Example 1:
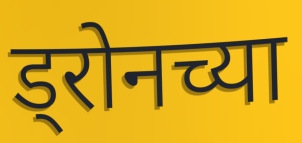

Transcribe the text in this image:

ड्रोनच्या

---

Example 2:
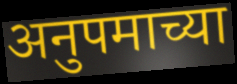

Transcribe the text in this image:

अनुपमाच्या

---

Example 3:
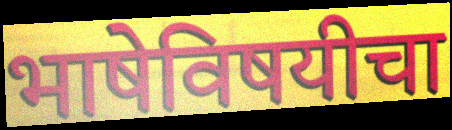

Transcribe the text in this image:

भाषेविषयीचा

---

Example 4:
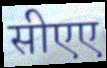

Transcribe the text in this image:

सीएए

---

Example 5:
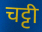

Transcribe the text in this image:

चट्टी